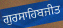
ਗੁਰਸਾਹਿਬਜੀਤ